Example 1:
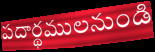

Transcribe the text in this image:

పదార్థములనుండి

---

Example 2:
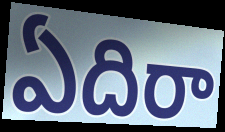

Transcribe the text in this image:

ఏదిరా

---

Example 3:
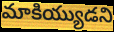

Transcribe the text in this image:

మాకియ్యుడని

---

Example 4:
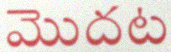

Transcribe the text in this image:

మొదట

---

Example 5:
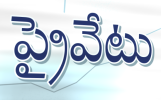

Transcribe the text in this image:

ప్రైవేటు